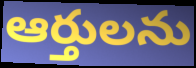
ఆర్తులను